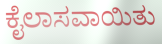
ಕೈಲಾಸವಾಯಿತು